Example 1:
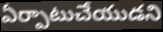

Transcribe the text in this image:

ఏర్పాటుచేయుడని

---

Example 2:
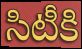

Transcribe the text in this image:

సిటీకి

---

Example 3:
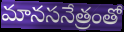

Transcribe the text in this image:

మానసనేత్రంతో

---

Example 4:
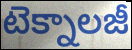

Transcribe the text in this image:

టెక్నాలజీ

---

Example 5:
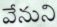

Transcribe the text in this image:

వేనుని